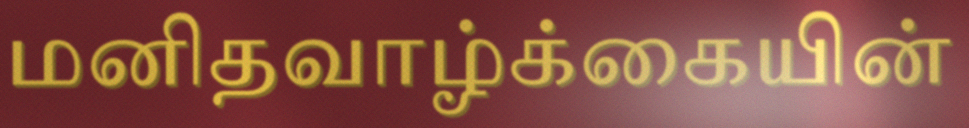
மனிதவாழ்க்கையின்